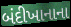
બંદીખાનાના